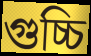
গুচ্চি